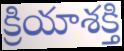
క్రియాశక్తి